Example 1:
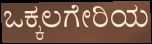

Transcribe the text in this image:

ಒಕ್ಕಲಗೇರಿಯ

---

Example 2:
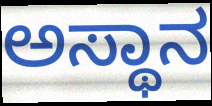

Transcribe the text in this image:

ಅಸ್ಥಾನ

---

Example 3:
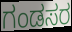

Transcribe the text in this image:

ಗಂಡಸರ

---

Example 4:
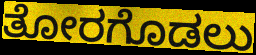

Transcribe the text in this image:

ತೋರಗೊಡಲು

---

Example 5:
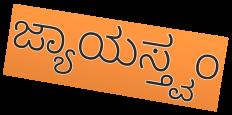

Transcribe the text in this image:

ಜ್ಯಾಯಸ್ತ್ವಂ